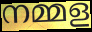
നമ്മള